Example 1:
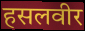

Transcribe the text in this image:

हसलवीर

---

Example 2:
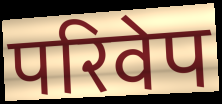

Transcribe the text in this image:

परिवेप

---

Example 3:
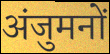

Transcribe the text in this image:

अंजुमनों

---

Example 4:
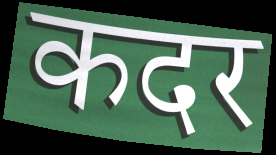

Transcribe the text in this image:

कदर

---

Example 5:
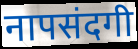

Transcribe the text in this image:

नापसंदगी